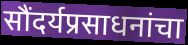
सौंदर्यप्रसाधनांचा